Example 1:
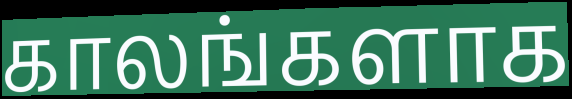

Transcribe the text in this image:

காலங்களாக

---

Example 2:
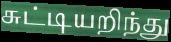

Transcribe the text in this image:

சுட்டியறிந்து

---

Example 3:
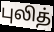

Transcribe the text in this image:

புலித்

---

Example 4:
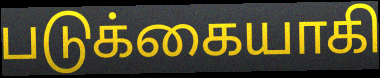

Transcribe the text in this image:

படுக்கையாகி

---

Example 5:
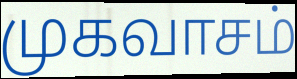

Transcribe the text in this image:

முகவாசம்